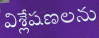
విశ్లేషణలను